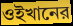
ওইখানের